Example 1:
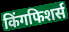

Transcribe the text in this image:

किंगफिशर्स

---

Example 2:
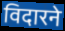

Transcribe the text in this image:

विदारने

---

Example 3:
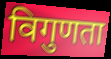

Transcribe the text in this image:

विगुणता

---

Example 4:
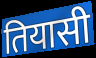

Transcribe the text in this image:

तियासी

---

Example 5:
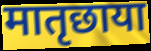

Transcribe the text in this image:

मातृछाया